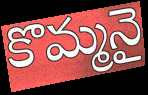
కొమ్మనై